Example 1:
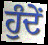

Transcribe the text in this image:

ਹੁੰਦੇਂ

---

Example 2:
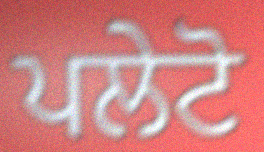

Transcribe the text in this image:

ਪਲੇਟੋ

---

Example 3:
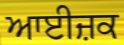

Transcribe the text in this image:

ਆਈਜ਼ਕ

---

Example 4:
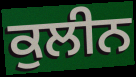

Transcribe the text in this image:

ਕੁਲੀਨ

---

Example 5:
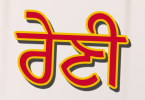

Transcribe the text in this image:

ਰੇਣੀ